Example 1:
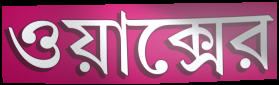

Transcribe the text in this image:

ওয়াক্সের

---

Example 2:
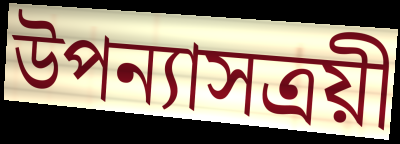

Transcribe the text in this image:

উপন্যাসত্রয়ী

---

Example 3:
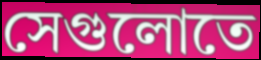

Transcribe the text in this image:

সেগুলোতে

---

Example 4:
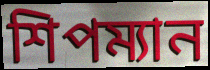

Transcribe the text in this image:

শিপম্যান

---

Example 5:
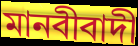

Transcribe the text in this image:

মানবীবাদী